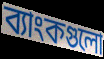
ব্যাংকগুলো